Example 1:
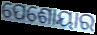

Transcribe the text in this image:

ପେଶୋୟାର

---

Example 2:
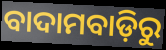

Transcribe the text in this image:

ବାଦାମବାଡ଼ିରୁ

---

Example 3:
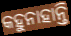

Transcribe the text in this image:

କହୁନାହାନ୍ତି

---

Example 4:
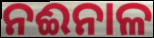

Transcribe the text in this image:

ନଈନାଳ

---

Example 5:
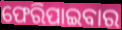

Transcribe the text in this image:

ଫେରିପାଇବାର